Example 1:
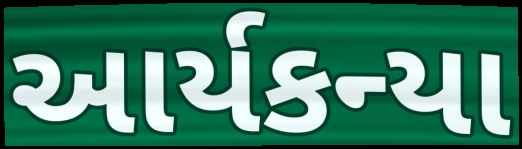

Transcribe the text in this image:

આર્યકન્યા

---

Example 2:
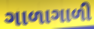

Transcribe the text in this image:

ગાળાગાળી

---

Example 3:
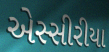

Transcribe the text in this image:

એસ્સીરીયા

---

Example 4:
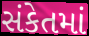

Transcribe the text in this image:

સંકેતમાં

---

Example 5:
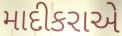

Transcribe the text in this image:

માદીકરાએ